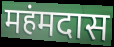
महंमदास